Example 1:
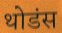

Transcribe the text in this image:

थोडंस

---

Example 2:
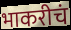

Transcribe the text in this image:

भाकरीचं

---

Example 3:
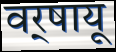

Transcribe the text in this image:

वर्षायू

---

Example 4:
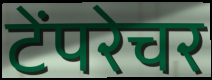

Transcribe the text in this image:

टेंपरेचर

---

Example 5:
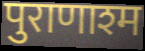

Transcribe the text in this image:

पुराणाश्म